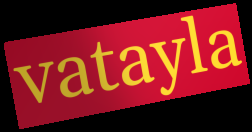
vatayla